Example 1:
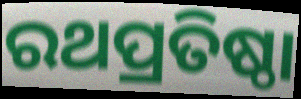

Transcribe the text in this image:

ରଥପ୍ରତିଷ୍ଠା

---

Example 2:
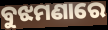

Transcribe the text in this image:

ବୁଝମଣାରେ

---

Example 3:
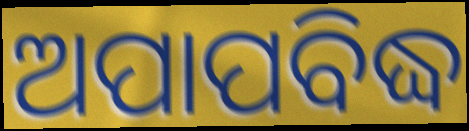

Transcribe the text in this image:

ଅପାପବିଦ୍ଧ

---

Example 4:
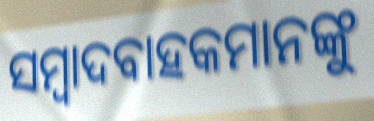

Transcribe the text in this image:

ସମ୍ବାଦବାହକମାନଙ୍କୁ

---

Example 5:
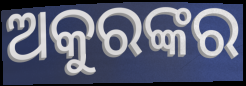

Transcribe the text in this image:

ଅକୁରଙ୍କର